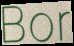
Bor